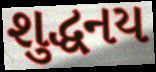
શુદ્ધનય